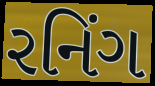
રનિંગ